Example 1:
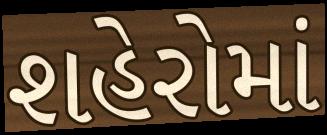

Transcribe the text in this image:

શહેરોમાં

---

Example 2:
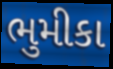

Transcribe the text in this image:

ભુમીકા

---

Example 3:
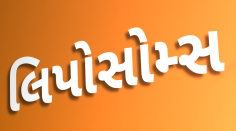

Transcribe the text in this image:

લિપોસોમ્સ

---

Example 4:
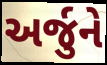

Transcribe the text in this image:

અર્જુને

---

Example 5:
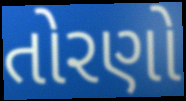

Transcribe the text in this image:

તોરણો